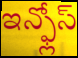
ఇన్ఫ్లోస్